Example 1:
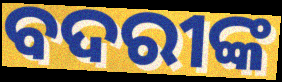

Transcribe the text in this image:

ବଦରୀଙ୍କ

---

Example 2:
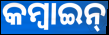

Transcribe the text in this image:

କମ୍ବାଇନ୍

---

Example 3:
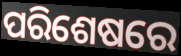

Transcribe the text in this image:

ପରିଶେଷରେ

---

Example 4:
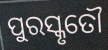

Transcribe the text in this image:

ପୁରସ୍କୃତୌ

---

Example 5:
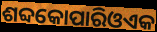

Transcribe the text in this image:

ଶବ୍ଦକୋପାରିଓଏକ